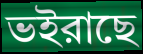
ভইরাছে